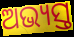
ଅଭ୍ୟସ୍ତ